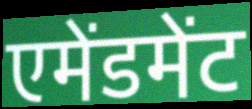
एमेंडमेंट